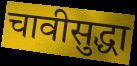
चावीसुद्धा